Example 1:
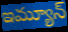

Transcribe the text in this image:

ఇమ్యూన్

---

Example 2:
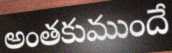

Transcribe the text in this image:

అంతకుముందే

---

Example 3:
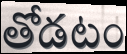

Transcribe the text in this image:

తోడటం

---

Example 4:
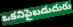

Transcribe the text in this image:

ఒకనిపైబడుదురు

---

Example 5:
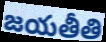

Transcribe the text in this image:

జయతీతి